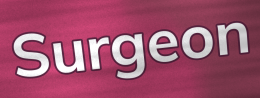
Surgeon